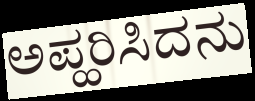
ಅಪ್ಹರಿಸಿದನು